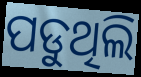
ପଡୁଥିଲି